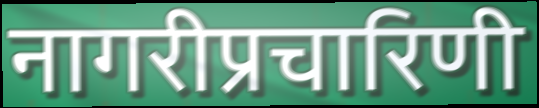
नागरीप्रचारिणी